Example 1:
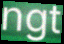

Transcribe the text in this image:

ngt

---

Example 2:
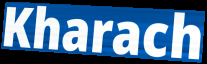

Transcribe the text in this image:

Kharach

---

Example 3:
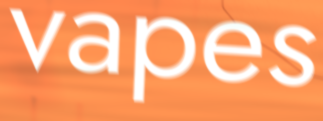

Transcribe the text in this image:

vapes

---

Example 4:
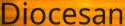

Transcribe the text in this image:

Diocesan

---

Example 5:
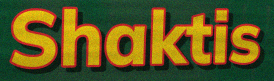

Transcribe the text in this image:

Shaktis